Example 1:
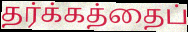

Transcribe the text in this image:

தர்க்கத்தைப்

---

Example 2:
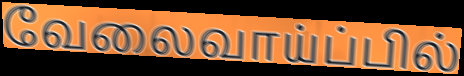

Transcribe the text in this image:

வேலைவாய்ப்பில்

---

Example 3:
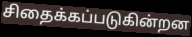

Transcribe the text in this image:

சிதைக்கப்படுகின்றன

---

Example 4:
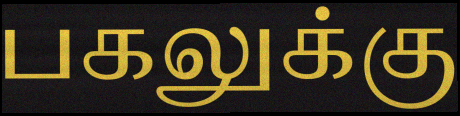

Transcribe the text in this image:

பகலுக்கு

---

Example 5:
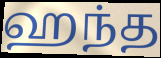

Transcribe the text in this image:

ஹந்த